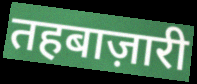
तहबाज़ारी